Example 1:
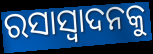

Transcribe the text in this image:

ରସାସ୍ୱାଦନକୁ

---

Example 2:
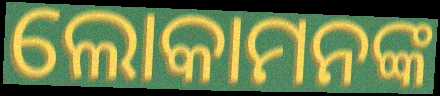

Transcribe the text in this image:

ଲୋକାମନଙ୍କ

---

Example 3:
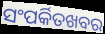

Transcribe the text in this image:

ସଂପର୍କିତଖବର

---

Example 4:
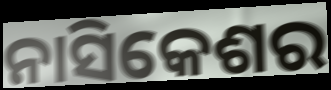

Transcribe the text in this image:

ନାସିକେଶର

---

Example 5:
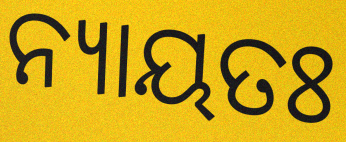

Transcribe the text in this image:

ନ୍ୟାୟତଃ